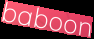
baboon